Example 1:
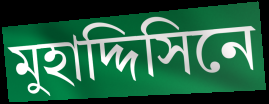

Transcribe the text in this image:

মুহাদ্দিসিনে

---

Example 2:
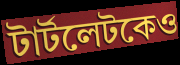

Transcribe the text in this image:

টার্টলেটকেও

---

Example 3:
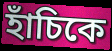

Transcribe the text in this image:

হাঁচিকে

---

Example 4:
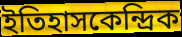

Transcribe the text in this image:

ইতিহাসকেন্দ্রিক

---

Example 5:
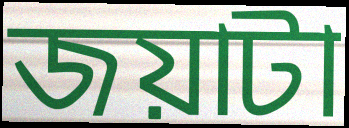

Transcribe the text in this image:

জয়াটা